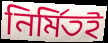
নির্মিতই